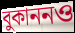
বুকাননও